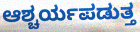
ಆಶ್ಚರ್ಯಪಡುತ್ತ